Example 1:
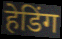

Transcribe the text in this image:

हेडिंग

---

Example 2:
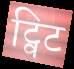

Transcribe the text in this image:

ट्विट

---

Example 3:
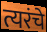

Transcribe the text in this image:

त्यरंचे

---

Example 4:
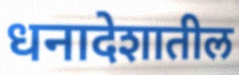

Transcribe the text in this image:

धनादेशातील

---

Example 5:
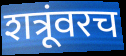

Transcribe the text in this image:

शत्रूंवरच